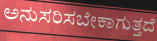
ಅನುಸರಿಸಬೇಕಾಗುತ್ತದೆ